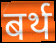
बर्थ